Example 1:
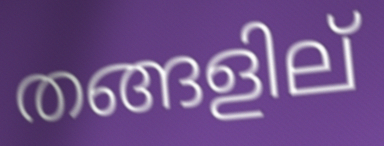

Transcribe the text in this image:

തങ്ങളില്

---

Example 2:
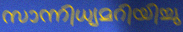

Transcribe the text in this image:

സാന്നിധ്യമറിയിച്ചു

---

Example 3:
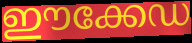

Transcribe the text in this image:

ഈക്കേഡ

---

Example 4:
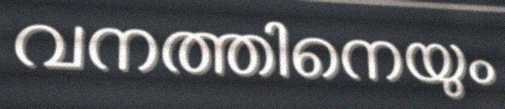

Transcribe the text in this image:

വനത്തിനെയും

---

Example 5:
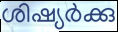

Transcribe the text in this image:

ശിഷ്യർക്കു